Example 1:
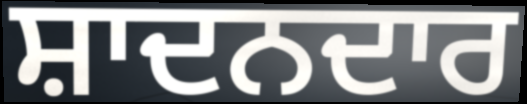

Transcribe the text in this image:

ਸ਼ਾਦਨਦਾਰ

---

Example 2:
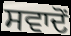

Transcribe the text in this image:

ਸਵਾਦੋਂ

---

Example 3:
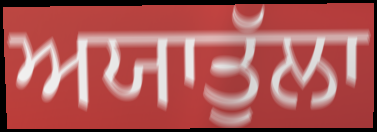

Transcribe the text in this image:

ਅਯਾਤੁੱਲਾ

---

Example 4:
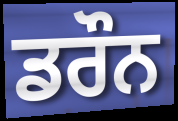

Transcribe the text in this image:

ਡਰੌਨ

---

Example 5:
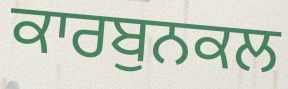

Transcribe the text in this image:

ਕਾਰਬੁਨਕਲ